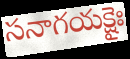
సనాగయక్షైః